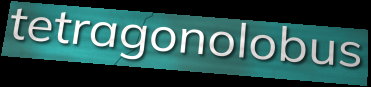
tetragonolobus